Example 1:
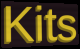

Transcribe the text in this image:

Kits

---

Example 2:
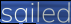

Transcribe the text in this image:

sailed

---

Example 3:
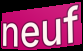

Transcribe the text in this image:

neuf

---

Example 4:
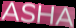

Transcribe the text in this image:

ASHA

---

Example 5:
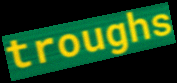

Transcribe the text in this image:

troughs